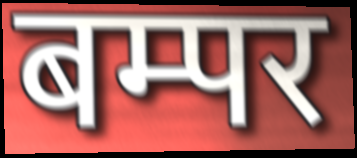
बम्पर